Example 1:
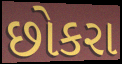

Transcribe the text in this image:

છોકરા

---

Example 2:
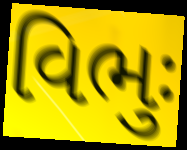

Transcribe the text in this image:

વિભુઃ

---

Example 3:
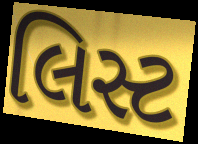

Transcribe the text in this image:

લિસ્ટ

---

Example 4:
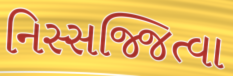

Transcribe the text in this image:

નિસ્સજ્જિત્વા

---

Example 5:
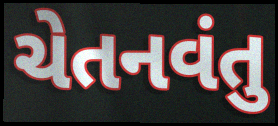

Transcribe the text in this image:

ચેતનવંતુ